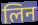
लिन